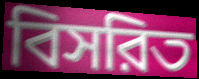
বিসরিত